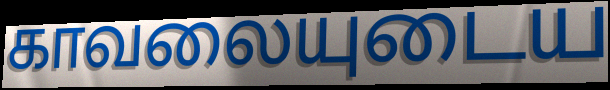
காவலையுடைய